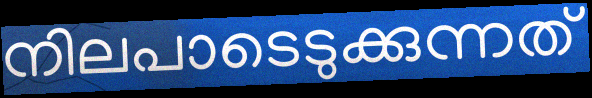
നിലപാടെടുക്കുന്നത്